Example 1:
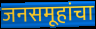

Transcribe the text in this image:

जनसमूहांचा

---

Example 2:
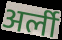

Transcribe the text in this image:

अर्ली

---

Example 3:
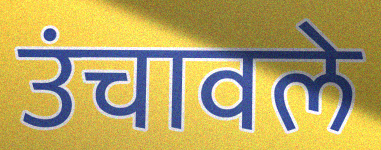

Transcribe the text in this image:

उंचावले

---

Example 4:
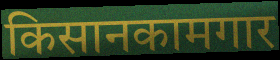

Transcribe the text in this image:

किसानकामगार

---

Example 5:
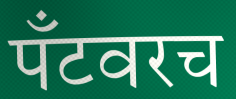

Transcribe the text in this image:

पँटवरच